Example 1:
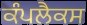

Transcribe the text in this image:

ਕੰਪਲੈਕਸ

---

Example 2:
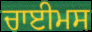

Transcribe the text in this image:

ਚਾਈਮਸ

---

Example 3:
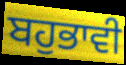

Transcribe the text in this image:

ਬਹੁਭਾਵੀ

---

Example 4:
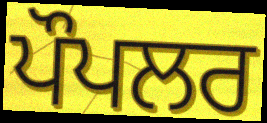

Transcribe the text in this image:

ਪੌਪਲਰ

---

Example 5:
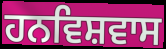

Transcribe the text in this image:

ਹਨਵਿਸ਼ਵਾਸ